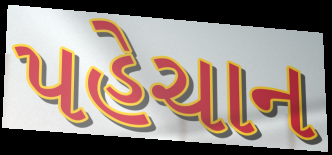
પહેચાન